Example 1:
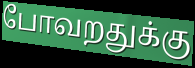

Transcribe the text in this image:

போவறதுக்கு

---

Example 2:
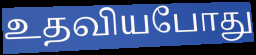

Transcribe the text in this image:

உதவியபோது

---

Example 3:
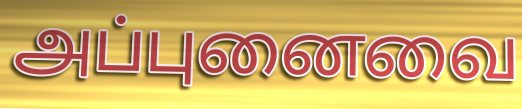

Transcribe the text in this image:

அப்புனைவை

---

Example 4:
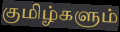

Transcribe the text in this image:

குமிழ்களும்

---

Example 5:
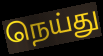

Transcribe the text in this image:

நெய்து